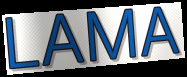
LAMA